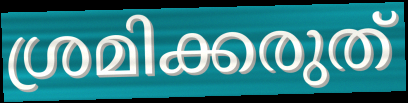
ശ്രമിക്കരുത്